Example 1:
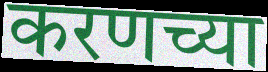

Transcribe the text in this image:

करणच्या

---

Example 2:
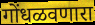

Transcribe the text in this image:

गोंधळवणारा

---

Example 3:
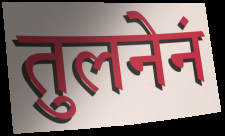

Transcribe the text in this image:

तुलनेनं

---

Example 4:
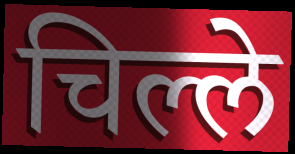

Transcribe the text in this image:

चिल्ले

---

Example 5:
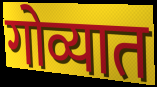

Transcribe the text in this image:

गोव्यात